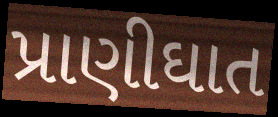
પ્રાણીઘાત